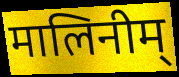
मालिनीम्